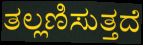
ತಲ್ಲಣಿಸುತ್ತದೆ